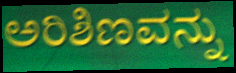
ಅರಿಶಿಣವನ್ನು